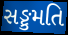
સઙ્કમતિ